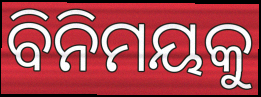
ବିନିମୟକୁ